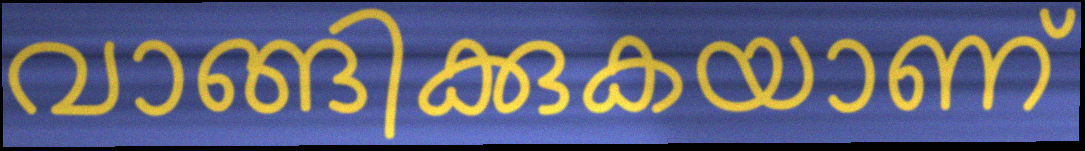
വാങ്ങിക്കുകയാണ്